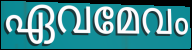
ഏവമേവം